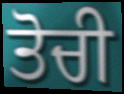
ਤੋਚੀ